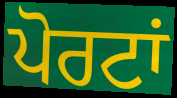
ਪੋਰਟਾਂ